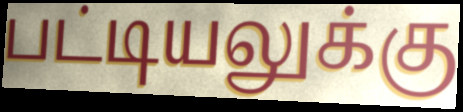
பட்டியலுக்கு